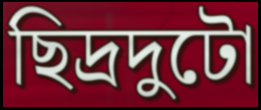
ছিদ্রদুটো